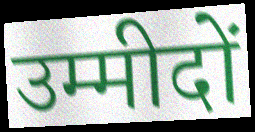
उम्मीदों